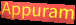
Appuram